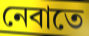
নেবাতে